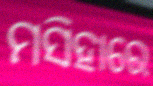
ମସିହାରେ